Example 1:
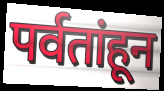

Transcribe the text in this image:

पर्वतांहून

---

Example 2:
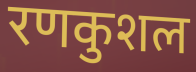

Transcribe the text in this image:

रणकुशल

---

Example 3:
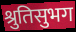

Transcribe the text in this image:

श्रुतिसुभग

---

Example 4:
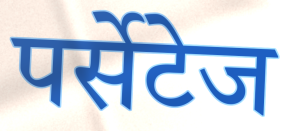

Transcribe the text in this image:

पर्सेटेज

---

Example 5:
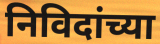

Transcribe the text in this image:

निविदांच्या